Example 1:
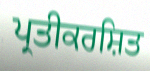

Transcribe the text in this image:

ਪ੍ਰਤੀਕਰਸ਼ਿਤ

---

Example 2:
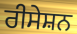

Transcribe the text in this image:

ਰੀਸੇਸ਼ਨ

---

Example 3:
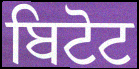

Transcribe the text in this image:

ਬਿਟੋਟ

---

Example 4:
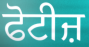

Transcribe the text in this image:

ਫੋਟੀਜ਼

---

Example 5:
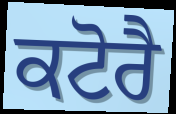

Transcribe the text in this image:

ਕਟੋਰੈ